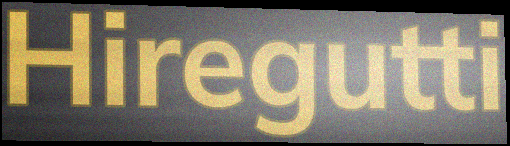
Hiregutti